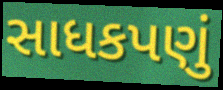
સાધકપણું